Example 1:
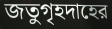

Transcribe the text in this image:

জতুগৃহদাহের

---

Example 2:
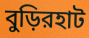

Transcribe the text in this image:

বুড়িরহাট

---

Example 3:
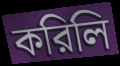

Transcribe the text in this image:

করিলি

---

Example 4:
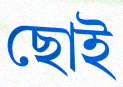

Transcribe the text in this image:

ছোই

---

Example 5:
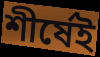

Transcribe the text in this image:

শীর্ষেই